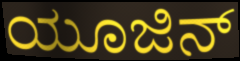
ಯೂಜಿನ್